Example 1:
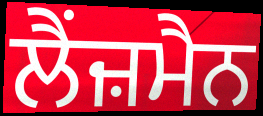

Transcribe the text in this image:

ਲੈਂਜ਼ਮੈਨ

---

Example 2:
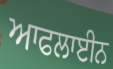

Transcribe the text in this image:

ਆਫਲਾਈਨ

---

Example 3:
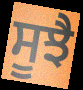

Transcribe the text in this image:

ਸੂਝੈ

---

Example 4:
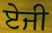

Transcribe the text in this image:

ਏਜੀ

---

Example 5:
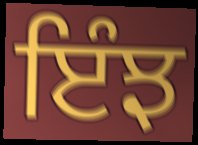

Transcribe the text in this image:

ਇੰਝ